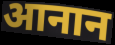
आनान